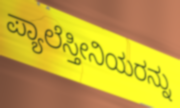
ಪ್ಯಾಲೆಸ್ತೀನಿಯರನ್ನು